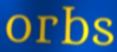
orbs